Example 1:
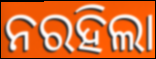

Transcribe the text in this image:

ନରହିଲା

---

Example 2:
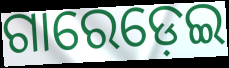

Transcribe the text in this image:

ଗାରେଡ଼େଇ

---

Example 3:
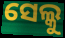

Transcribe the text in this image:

ସେଲ୍କୁ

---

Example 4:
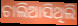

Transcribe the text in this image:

ଚାଲିଆସିଥିଲି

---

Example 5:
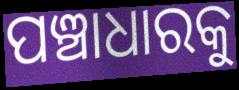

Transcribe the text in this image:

ପଞ୍ଚାଧାରକୁ